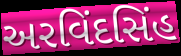
અરવિંદસિંહ